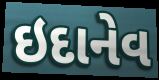
ઇદાનેવ